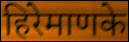
हिरेमाणके